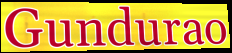
Gundurao